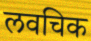
लवचिक